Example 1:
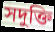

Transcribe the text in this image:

সদুক্তি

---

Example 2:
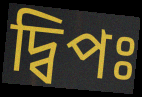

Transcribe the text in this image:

দ্বিপঃ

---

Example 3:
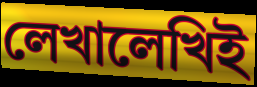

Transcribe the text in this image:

লেখালেখিই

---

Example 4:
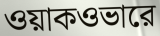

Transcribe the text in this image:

ওয়াকওভারে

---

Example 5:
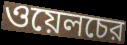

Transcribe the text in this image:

ওয়েলচের